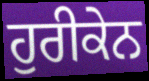
ਹੁਰੀਕੇਨ